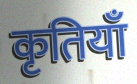
कृतियाँ